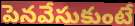
పెనవేసుకుంటే